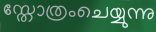
സ്തോത്രംചെയ്യുന്നു